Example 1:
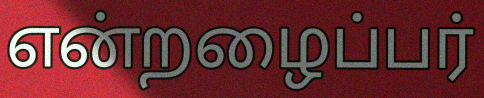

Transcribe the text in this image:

என்றழைப்பர்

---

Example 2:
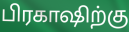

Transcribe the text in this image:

பிரகாஷிற்கு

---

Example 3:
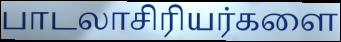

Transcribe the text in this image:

பாடலாசிரியர்களை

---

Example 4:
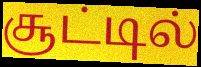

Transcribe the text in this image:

சூட்டில்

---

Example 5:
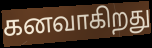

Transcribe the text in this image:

கனவாகிறது